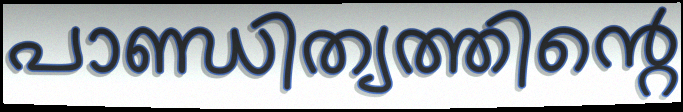
പാണ്ഡിത്യത്തിന്റെ